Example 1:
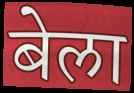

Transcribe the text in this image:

बेला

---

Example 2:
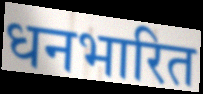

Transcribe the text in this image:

धनभारित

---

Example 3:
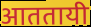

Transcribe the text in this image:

आततायी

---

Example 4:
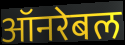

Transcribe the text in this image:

ऑनरेबल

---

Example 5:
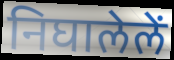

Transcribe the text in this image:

निघालेलें